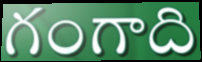
గంగాది